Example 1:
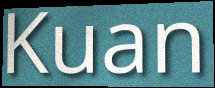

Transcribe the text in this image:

Kuan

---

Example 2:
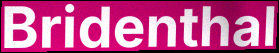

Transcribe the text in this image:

Bridenthal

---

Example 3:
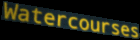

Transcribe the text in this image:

Watercourses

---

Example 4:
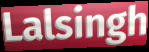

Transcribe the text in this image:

Lalsingh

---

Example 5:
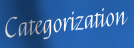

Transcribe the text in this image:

Categorization